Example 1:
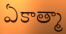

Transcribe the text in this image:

ఏకాత్మా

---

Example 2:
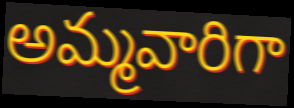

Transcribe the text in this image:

అమ్మవారిగా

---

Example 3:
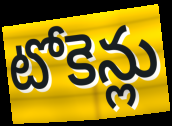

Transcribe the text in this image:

టోకెన్లు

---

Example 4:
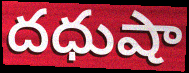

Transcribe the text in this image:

దధుషా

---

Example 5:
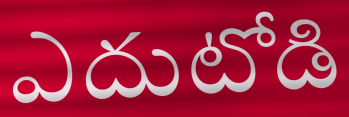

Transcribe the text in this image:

ఎదుటోడి